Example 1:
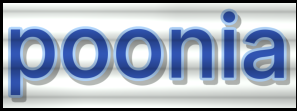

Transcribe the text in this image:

poonia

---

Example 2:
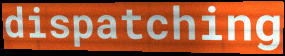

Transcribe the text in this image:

dispatching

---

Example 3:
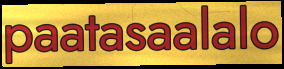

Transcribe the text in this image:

paatasaalalo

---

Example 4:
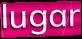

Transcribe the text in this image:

lugar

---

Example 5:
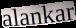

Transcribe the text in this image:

alankar